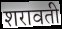
शरावती